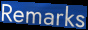
Remarks